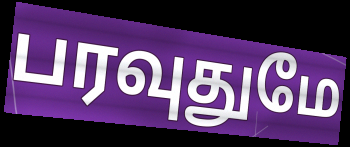
பரவுதுமே